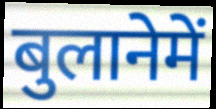
बुलानेमें